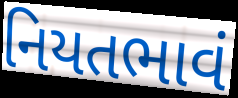
નિયતભાવં